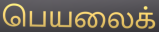
பெயலைக்